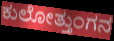
ಕುಲೋತ್ತುಂಗನ